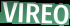
VIREO